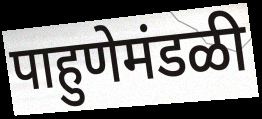
पाहुणेमंडळी